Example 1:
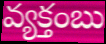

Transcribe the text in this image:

వ్యక్తంబు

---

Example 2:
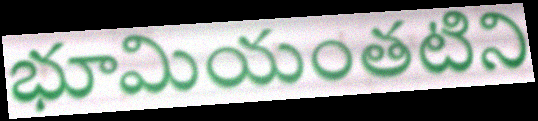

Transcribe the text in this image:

భూమియంతటిని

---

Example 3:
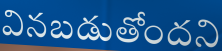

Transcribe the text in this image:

వినబడుతోందని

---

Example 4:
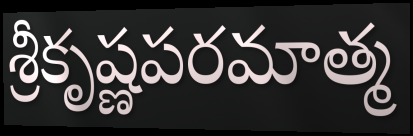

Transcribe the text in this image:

శ్రీకృష్ణపరమాత్మ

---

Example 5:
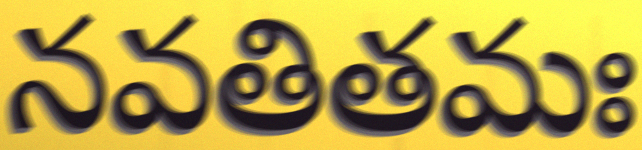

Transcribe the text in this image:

నవతితమః